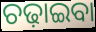
ଚଢ଼ାଇବା